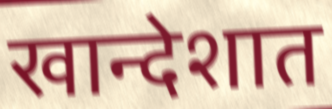
खान्देशात